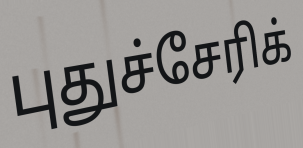
புதுச்சேரிக்